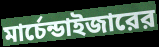
মার্চেন্ডাইজারের